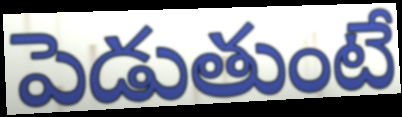
పెడుతుంటే